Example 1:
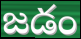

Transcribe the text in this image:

జడం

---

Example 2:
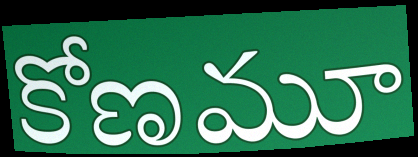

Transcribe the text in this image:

కోణమూ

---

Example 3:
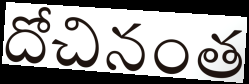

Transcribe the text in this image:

దోచినంత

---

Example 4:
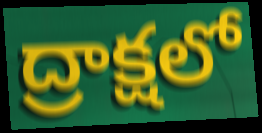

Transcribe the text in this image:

ద్రాక్షలో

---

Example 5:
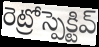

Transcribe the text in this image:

రెట్రోస్పెక్టివ్